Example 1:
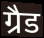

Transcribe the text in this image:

ग्रैड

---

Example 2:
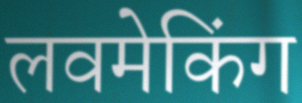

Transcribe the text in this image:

लवमेकिंग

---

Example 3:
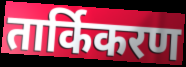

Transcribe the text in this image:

तार्किकरण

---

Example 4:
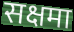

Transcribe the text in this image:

सक्षमा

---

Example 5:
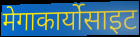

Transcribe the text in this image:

मेगाकार्योसाइट